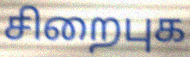
சிறைபுக